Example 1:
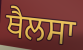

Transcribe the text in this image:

ਥੈਲਸਾ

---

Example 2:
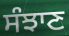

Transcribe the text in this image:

ਸੰਝਾਣ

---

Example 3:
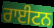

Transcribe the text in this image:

ਰਾਈਟਨ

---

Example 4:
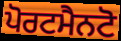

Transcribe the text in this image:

ਪੋਰਟਮੈਨਟੋ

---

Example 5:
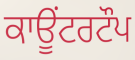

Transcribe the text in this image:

ਕਾਊਂਟਰਟੌਪ